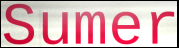
Sumer